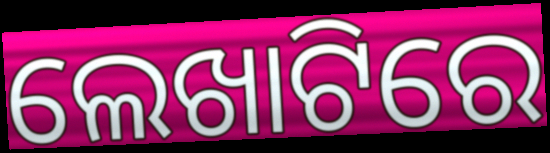
ଲେଖାଟିରେ